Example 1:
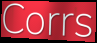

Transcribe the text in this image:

Corrs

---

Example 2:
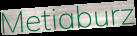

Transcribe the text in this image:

Metiaburz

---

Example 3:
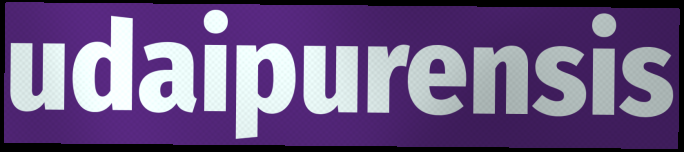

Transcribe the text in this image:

udaipurensis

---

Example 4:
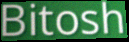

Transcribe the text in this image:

Bitosh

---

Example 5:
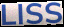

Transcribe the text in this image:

LISS